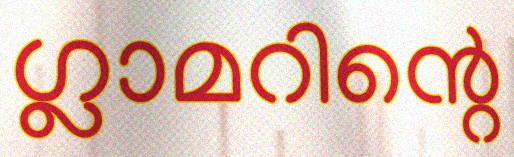
ഗ്ലാമറിന്റെ